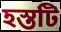
হস্তটি